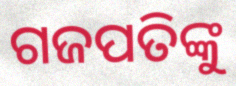
ଗଜପତିଙ୍କୁ